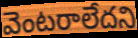
వెంటరాలేదని